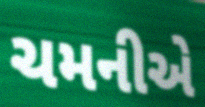
ચમનીએ